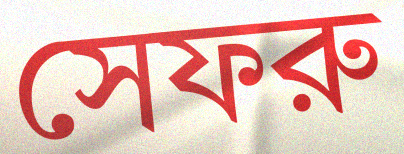
সেফরু